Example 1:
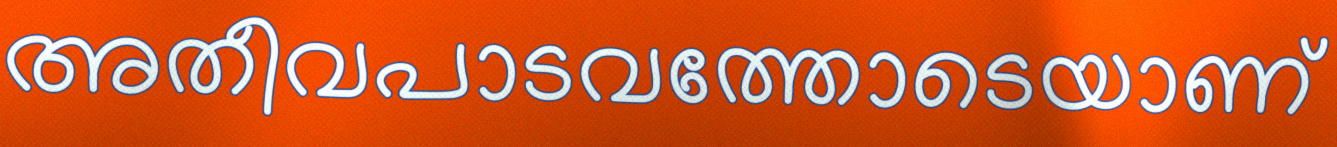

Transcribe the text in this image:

അതീവപാടവത്തോടെയാണ്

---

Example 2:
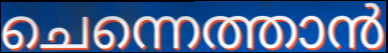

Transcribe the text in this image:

ചെന്നെത്താൻ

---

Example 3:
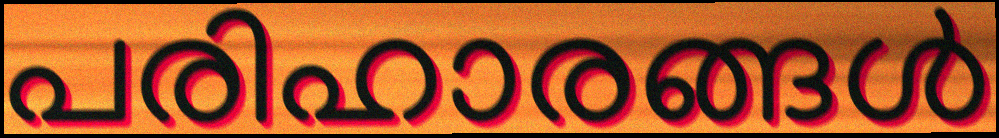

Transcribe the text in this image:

പരിഹാരങ്ങൾ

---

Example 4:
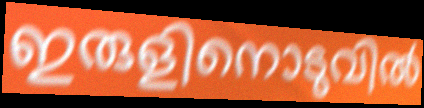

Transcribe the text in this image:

ഇരുളിനൊടുവിൽ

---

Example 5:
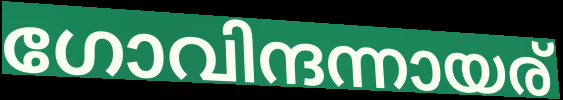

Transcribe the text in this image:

ഗോവിന്ദന്നായര്